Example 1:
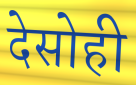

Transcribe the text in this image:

देसोही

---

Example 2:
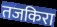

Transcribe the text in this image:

तजकिरा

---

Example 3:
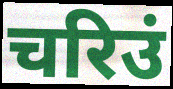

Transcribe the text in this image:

चरिउं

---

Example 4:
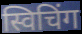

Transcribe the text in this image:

स्विचिंग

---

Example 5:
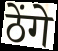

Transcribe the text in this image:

ठेंगे